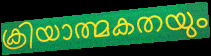
ക്രിയാത്മകതയും